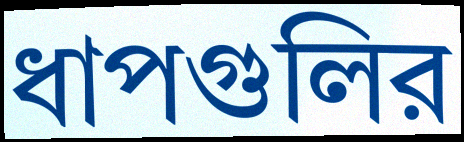
ধাপগুলির